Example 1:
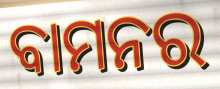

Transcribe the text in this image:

ବାମନର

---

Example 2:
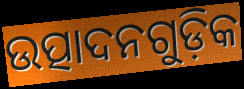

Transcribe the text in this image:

ଉତ୍ପାଦନଗୁଡ଼ିକ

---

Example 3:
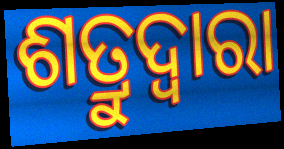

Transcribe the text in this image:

ଶତ୍ରୁଦ୍ଵାରା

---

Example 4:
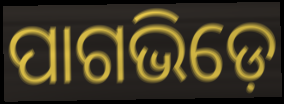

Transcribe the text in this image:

ପାଗଭିଡ଼େ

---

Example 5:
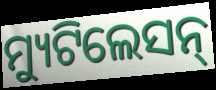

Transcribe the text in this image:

ମ୍ୟୁଟିଲେସନ୍